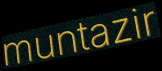
muntazir